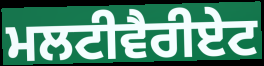
ਮਲਟੀਵੈਰੀਏਟ